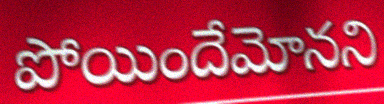
పోయిందేమోనని